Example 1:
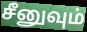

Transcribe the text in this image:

சீனுவும்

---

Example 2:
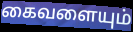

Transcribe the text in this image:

கைவளையும்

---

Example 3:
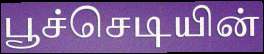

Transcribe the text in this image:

பூச்செடியின்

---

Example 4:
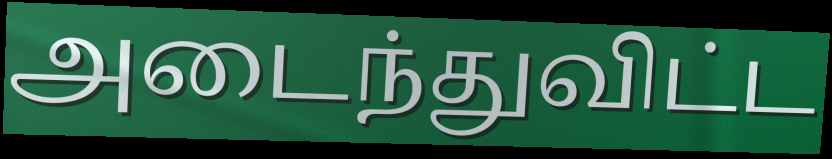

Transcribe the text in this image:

அடைந்துவிட்ட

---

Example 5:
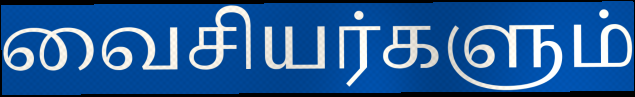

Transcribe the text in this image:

வைசியர்களும்